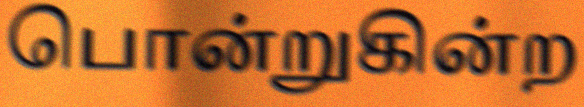
பொன்றுகின்ற